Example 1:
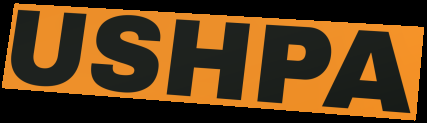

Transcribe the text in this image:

USHPA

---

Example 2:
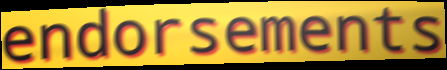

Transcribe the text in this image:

endorsements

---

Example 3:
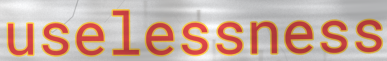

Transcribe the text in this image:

uselessness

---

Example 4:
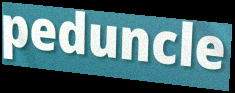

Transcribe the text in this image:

peduncle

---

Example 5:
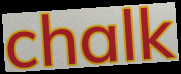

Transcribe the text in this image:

chalk